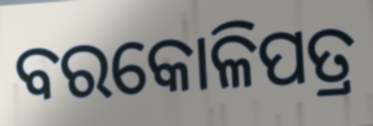
ବରକୋଳିପତ୍ର